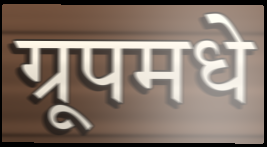
ग्रूपमधे